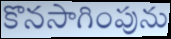
కొనసాగింపును